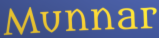
Munnar